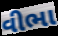
વીભા